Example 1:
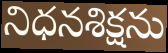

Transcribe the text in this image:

నిధనశిక్షను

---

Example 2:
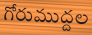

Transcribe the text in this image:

గోరుముద్దల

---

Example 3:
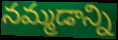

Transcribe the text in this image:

నమ్మడాన్ని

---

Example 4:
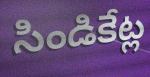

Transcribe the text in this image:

సిండికేట్ల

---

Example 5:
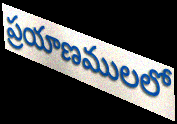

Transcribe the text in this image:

ప్రయాణములలో